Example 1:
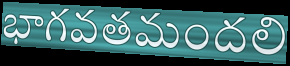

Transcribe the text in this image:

భాగవతమందలి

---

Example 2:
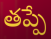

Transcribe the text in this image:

తప్పే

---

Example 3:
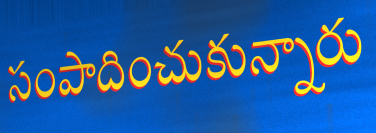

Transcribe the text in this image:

సంపాదించుకున్నారు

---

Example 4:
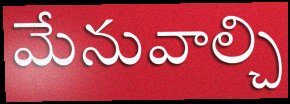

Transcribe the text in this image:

మేనువాల్చి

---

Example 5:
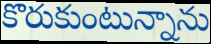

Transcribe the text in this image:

కొరుకుంటున్నాను